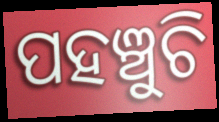
ପହଞ୍ଚୁଚି